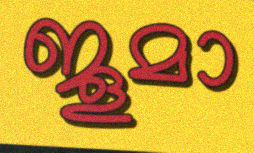
ജൂമാ